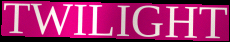
TWILIGHT